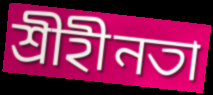
শ্রীহীনতা